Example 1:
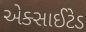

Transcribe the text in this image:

એક્સાઈટેડ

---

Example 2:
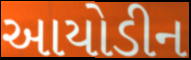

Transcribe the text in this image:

આયોડીન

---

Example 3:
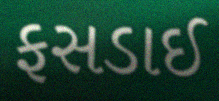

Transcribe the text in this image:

ફસડાઈ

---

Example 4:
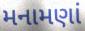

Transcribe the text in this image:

મનામણાં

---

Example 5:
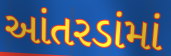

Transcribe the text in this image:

આંતરડાંમાં